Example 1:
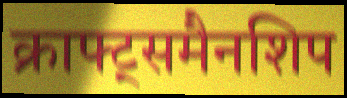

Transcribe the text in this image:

क्राफ्ट्समैनशिप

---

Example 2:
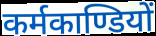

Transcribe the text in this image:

कर्मकाण्डियों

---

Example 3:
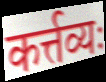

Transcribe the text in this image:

कर्त्तव्यः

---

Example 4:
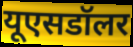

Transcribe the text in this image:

यूएसडॉलर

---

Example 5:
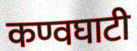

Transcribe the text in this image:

कण्वघाटी